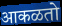
आकळतो